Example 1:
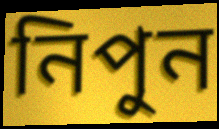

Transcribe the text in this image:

নিপুন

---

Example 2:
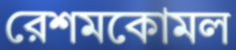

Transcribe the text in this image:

রেশমকোমল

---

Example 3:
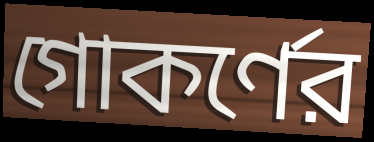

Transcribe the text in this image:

গোকর্ণের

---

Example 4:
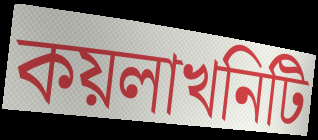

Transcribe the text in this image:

কয়লাখনিটি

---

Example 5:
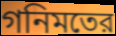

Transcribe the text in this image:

গনিমতের